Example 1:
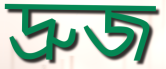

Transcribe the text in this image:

দ্রুজ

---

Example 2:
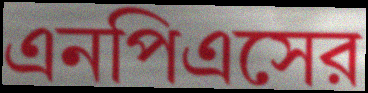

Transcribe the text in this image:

এনপিএসের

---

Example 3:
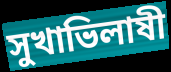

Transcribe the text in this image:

সুখাভিলাষী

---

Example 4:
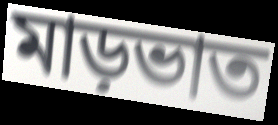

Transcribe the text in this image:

মাড়ভাত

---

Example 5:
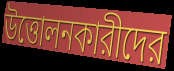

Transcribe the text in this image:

উত্তোলনকারীদের